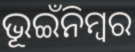
ଭୂଇଁନିମ୍ବର